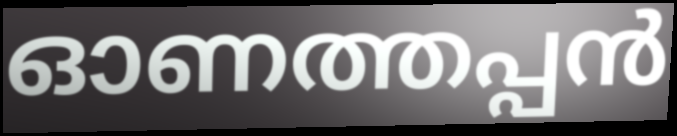
ഓണത്തപ്പൻ